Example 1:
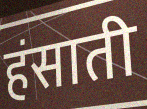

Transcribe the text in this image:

हंसाती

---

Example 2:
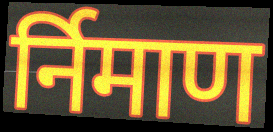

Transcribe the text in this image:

र्निमाण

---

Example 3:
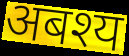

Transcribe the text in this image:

अबश्य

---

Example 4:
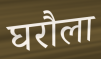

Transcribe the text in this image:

घरौला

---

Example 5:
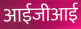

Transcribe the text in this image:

आईजीआई